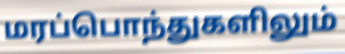
மரப்பொந்துகளிலும்